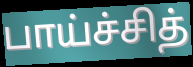
பாய்ச்சித்